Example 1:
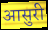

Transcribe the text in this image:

आसुरी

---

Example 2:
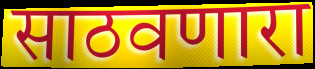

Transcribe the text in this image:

साठवणारा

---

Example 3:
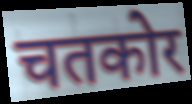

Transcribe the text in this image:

चतकोर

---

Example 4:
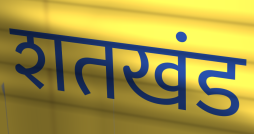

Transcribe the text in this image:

शतखंड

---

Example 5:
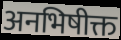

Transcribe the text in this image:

अनभिषीक्त